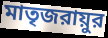
মাতৃজরায়ুর